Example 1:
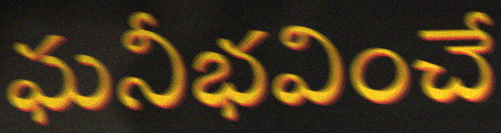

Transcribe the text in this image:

ఘనీభవించే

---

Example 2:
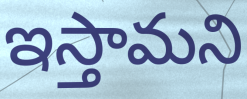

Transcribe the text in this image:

ఇస్తామని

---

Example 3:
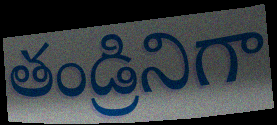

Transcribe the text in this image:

తండ్రినిగా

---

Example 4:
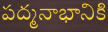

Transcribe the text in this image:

పద్మనాభానికి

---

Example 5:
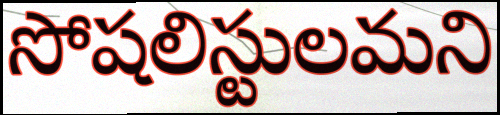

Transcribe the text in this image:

సోషలిస్టులమని